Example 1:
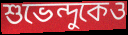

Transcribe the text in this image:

শুভেন্দুকেও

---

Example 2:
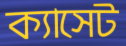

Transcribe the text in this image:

ক্যাসেট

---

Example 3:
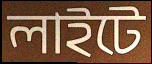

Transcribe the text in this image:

লাইটে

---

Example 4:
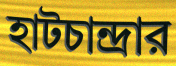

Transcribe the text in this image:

হাটচান্দ্রার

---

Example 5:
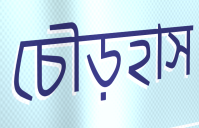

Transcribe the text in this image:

চৌড়হাস